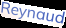
Reynaud